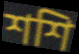
শশি